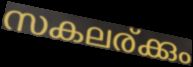
സകലര്ക്കും